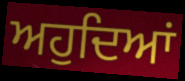
ਅਹੁਦਿਆਂ